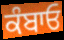
ਕੰਬਾਓ